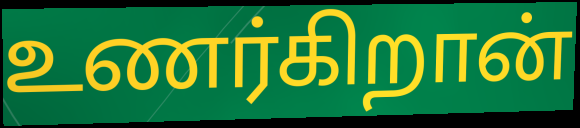
உணர்கிறான்